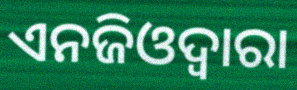
ଏନଜିଓଦ୍ୱାରା